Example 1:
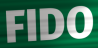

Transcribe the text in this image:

FIDO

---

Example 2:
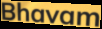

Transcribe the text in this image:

Bhavam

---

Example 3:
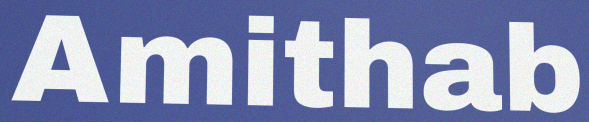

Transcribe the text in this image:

Amithab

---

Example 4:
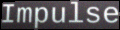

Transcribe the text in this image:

Impulse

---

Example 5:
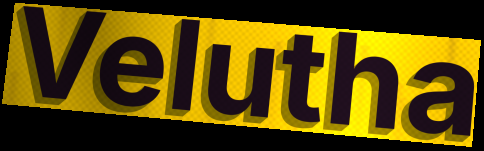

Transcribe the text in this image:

Velutha